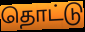
தொட்டு